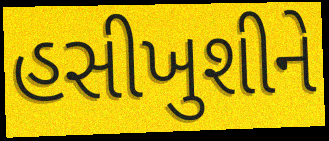
હસીખુશીને